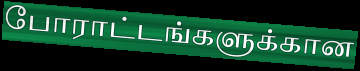
போராட்டங்களுக்கான